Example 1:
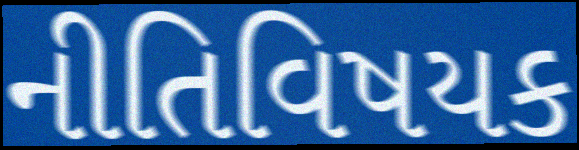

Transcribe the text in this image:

નીતિવિષયક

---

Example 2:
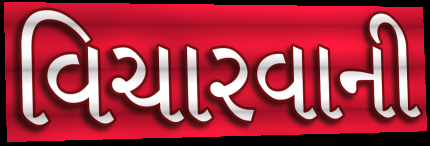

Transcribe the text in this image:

વિચારવાની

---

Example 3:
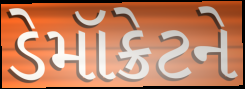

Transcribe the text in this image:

ડેમૉક્રેટને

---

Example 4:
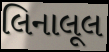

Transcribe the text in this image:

લિનાલૂલ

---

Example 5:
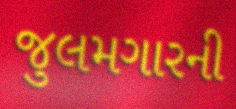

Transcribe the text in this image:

જુલમગારની